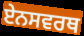
ਏਨਸਵਰਥ